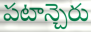
పటాన్చెరు